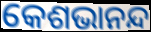
କେଶଭାନନ୍ଦ